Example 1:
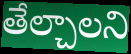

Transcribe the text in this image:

తేల్చాలని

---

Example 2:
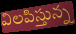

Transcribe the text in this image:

విలపిస్తున్న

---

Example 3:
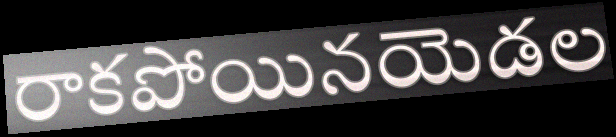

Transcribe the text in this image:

రాకపోయినయెడల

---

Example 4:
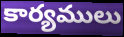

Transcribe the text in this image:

కార్యములు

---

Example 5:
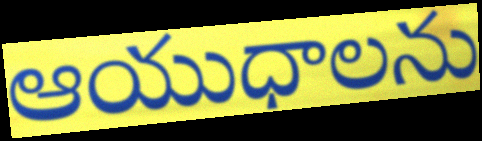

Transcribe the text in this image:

ఆయుధాలను